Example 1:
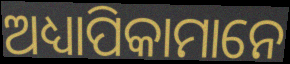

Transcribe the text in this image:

ଅଧ୍ୟାପିକାମାନେ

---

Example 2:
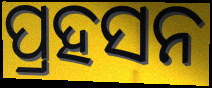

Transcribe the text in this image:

ପ୍ରହସନ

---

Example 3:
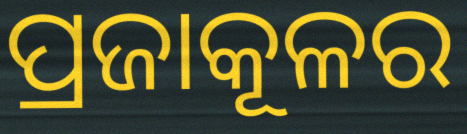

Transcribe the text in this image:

ପ୍ରଜାକୂଳର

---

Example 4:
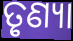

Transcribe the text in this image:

ତୃଣ୍ୟା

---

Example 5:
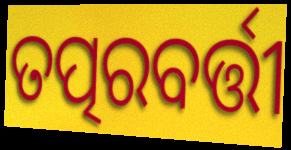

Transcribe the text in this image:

ତତ୍ପରବର୍ତ୍ତୀ